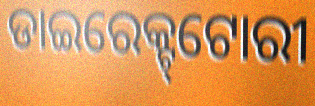
ଡାଇରେକ୍ଟ୍‌ଟୋରୀ